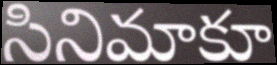
సినిమాకూ